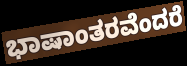
ಭಾಷಾಂತರವೆಂದರೆ